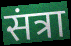
संत्रा